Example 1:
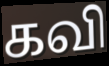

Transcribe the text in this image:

கவி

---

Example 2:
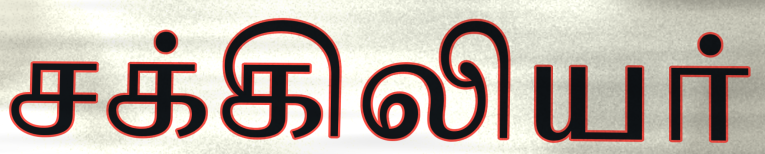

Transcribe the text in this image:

சக்கிலியர்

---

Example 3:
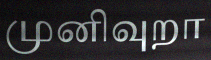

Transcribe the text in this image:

முனிவுறா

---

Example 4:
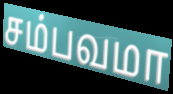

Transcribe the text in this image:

சம்பவமா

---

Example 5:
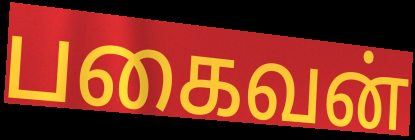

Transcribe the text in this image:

பகைவன்